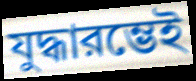
যুদ্ধারম্ভেই